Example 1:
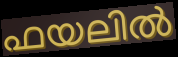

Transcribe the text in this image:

ഫയലിൽ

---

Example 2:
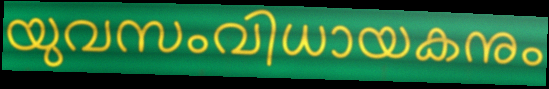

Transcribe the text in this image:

യുവസംവിധായകനും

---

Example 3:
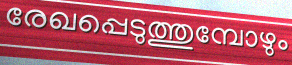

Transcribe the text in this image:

രേഖപ്പെടുത്തുമ്പോഴും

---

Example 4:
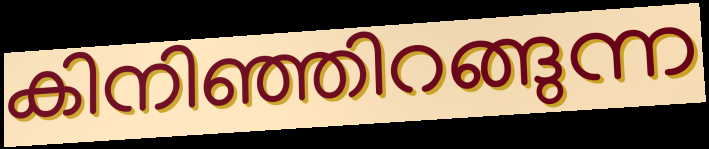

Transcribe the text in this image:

കിനിഞ്ഞിറങ്ങുന്ന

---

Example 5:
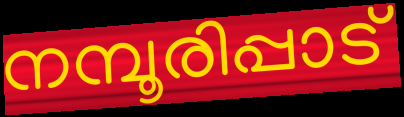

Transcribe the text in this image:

നമ്പൂരിപ്പാട്